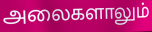
அலைகளாலும்